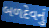
બળદેવનું